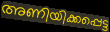
അണിയിക്കപ്പെട്ട